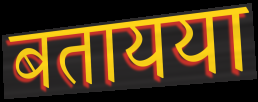
बतायया